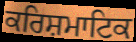
ਕਰਿਸ਼ਮਾਟਿਕ